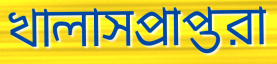
খালাসপ্রাপ্তরা